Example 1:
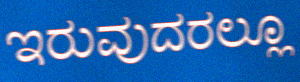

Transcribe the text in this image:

ಇರುವುದರಲ್ಲೂ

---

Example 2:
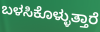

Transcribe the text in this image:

ಬಳಸಿಕೊಳ್ಳುತ್ತಾರೆ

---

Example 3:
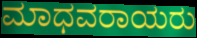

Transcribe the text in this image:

ಮಾಧವರಾಯರು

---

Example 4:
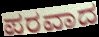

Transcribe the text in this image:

ಪರವಾದ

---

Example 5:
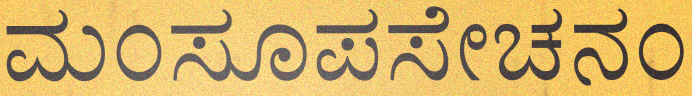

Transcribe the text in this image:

ಮಂಸೂಪಸೇಚನಂ